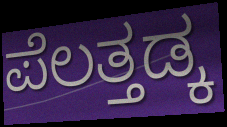
ಪೆಲತ್ತಡ್ಕ